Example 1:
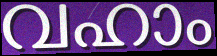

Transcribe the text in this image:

വഹാം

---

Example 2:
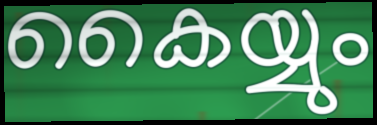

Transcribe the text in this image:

കൈയ്യും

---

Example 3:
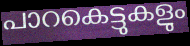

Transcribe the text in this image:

പാറകെട്ടുകളും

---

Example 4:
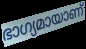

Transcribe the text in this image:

ഭാഗ്യമായാണ്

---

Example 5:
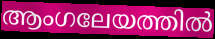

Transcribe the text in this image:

ആംഗലേയത്തിൽ